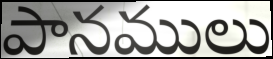
పానములు